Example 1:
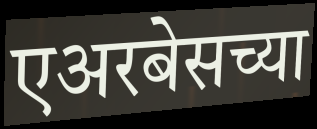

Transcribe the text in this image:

एअरबेसच्या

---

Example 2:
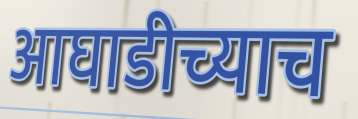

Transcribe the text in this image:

आघाडीच्याच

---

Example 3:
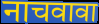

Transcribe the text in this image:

नाचवावा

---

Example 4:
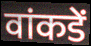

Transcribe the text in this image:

वांकडें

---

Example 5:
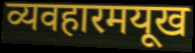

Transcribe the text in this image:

व्यवहारमयूख